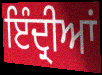
ਇੰਦ੍ਰੀਆਂ